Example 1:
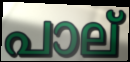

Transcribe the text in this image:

പാല്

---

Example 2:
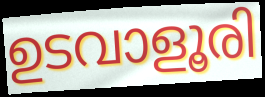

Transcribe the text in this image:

ഉടവാളൂരി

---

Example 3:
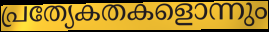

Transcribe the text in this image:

പ്രത്യേകതകളൊന്നും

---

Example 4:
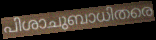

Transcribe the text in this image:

പിശാചുബാധിതരെ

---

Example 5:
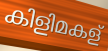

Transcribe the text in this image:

കിളിമകള്